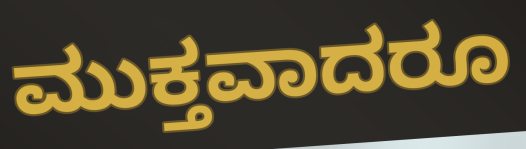
ಮುಕ್ತವಾದರೂ